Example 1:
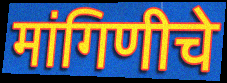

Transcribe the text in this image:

मांगिणीचे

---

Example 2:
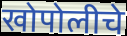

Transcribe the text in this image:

खोपोलीचे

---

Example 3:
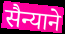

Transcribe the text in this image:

सैन्याने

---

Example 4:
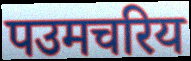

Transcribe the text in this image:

पउमचरिय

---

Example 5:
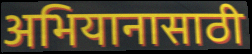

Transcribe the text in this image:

अभियानासाठी